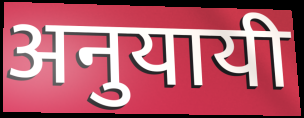
अनुयायी